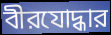
বীরযোদ্ধার